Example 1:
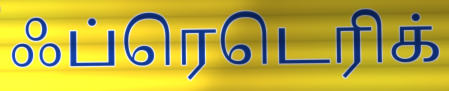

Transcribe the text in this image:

ஃப்ரெடெரிக்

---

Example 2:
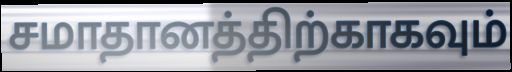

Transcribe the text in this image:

சமாதானத்திற்காகவும்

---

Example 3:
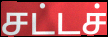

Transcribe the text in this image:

சட்டச்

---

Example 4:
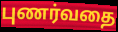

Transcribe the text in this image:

புணர்வதை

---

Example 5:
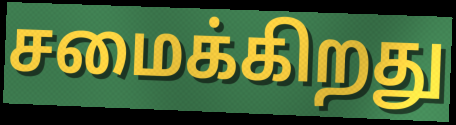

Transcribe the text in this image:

சமைக்கிறது